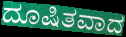
ದೂಷಿತವಾದ